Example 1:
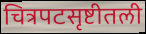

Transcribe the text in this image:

चित्रपटसृष्टीतली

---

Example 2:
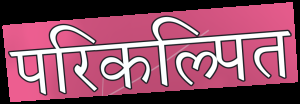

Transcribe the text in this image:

परिकल्पित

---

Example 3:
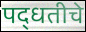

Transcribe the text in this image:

पद्धतीचे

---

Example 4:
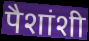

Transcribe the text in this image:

पैशांशी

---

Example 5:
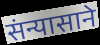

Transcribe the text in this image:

संन्यासाने